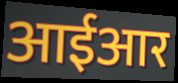
आईआर